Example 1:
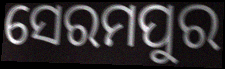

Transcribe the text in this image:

ସେରମପୁର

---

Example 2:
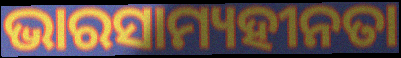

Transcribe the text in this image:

ଭାରସାମ୍ୟହୀନତା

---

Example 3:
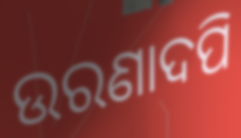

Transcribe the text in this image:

ଉରଣାଦପି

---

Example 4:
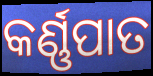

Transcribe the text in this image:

କର୍ଣ୍ଣପାତ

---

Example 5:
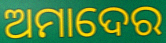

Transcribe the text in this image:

ଅମାଦେର